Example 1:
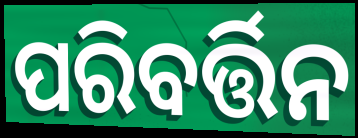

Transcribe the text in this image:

ପରିବର୍ତ୍ତିନ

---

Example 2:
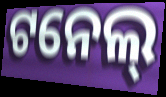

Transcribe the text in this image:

ଟନେଲ୍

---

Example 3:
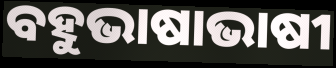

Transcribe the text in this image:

ବହୁଭାଷାଭାଷୀ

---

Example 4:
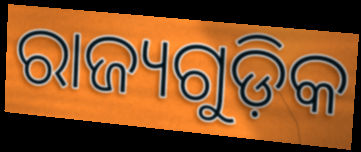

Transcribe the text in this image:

ରାଜ୍ୟଗୁଡ଼ିକ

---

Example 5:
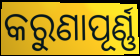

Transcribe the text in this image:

କରୁଣାପୂର୍ଣ୍ଣ